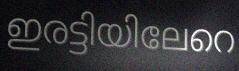
ഇരട്ടിയിലേറെ